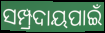
ସମ୍ପ୍ରଦାୟପାଇଁ